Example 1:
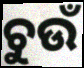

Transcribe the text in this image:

ଚୁଉଁ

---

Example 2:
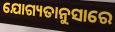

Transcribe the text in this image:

ଯୋଗ୍ୟତାନୁସାରେ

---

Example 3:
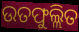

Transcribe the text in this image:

ଉତଫୁଲ୍ଲିତ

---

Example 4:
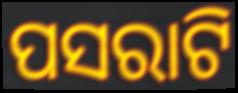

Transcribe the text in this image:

ପସରାଟି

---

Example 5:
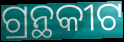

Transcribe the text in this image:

ଗ୍ରନ୍ଥକୀଟ